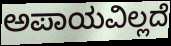
ಅಪಾಯವಿಲ್ಲದೆ